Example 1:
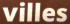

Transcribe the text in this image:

villes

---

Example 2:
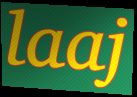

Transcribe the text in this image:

laaj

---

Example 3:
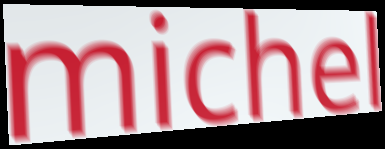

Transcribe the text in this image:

michel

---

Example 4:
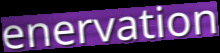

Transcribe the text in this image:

enervation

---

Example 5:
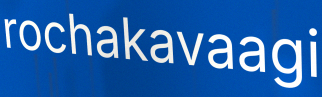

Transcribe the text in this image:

rochakavaagi